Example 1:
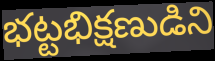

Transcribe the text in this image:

భట్టభిక్షణుడిని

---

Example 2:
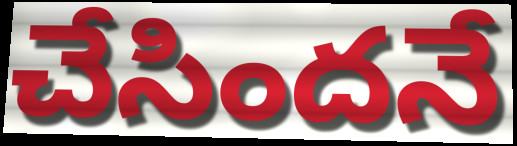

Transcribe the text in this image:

చేసిందనే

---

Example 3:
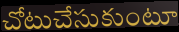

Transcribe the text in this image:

చోటుచేసుకుంటూ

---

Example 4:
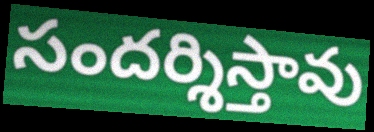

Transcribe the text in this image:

సందర్శిస్తావు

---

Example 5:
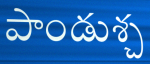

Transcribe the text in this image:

పాండుశ్చ